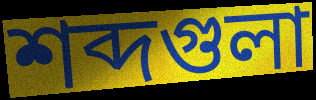
শব্দগুলা